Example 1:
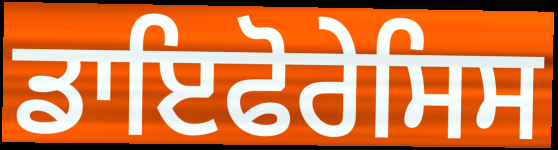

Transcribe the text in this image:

ਡਾਇਫੋਰੇਸਿਸ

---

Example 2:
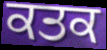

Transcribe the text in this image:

ਕਤਕ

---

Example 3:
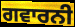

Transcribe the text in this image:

ਗਵਾਰਨੀ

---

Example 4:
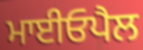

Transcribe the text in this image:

ਮਾਈਓਪੈਲ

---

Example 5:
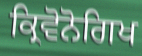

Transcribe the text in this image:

ਕ੍ਰਿਵੋਨੋਗਿਖ